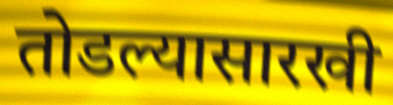
तोडल्यासारखी